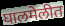
घालमेलीत